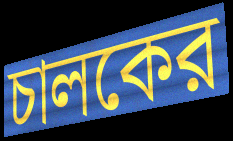
চালকের